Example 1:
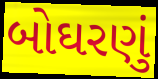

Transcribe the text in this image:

બોઘરણું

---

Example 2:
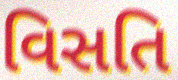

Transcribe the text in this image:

વિસતિ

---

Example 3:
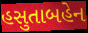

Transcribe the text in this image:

હસુતાબહેન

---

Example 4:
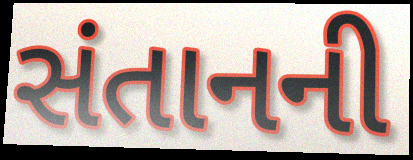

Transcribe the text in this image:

સંતાનની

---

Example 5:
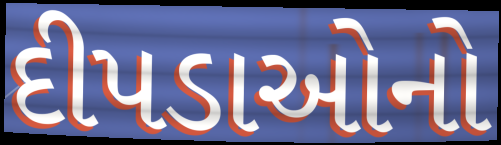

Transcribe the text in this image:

દીપડાઓનો